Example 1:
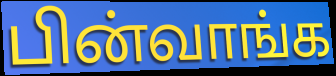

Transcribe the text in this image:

பின்வாங்க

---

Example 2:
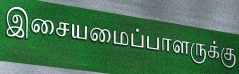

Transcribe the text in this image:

இசையமைப்பாளருக்கு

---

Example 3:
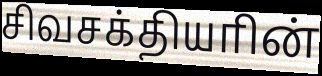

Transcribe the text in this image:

சிவசக்தியரின்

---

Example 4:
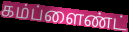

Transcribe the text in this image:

கம்ப்ளைண்ட்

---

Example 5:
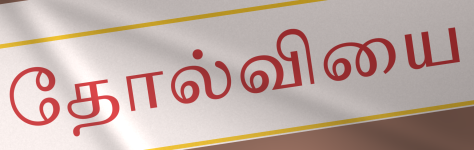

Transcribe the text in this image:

தோல்வியை